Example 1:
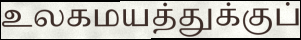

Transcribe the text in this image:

உலகமயத்துக்குப்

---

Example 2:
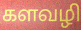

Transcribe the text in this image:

களவழி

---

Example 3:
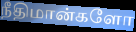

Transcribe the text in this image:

நீதிமான்களோ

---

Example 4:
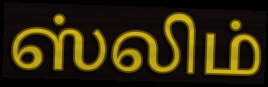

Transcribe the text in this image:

ஸ்லிம்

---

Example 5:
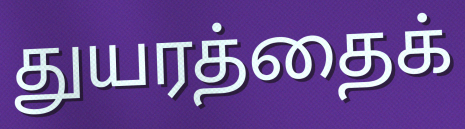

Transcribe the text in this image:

துயரத்தைக்